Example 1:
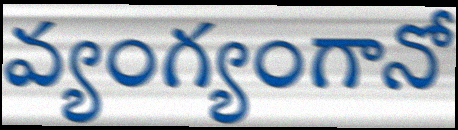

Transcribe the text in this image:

వ్యంగ్యంగానో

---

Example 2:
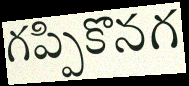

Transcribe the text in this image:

గప్పికొనగ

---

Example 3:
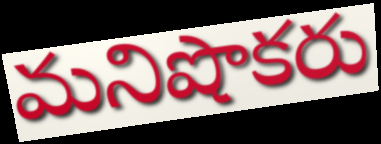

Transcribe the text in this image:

మనిషొకరు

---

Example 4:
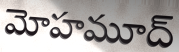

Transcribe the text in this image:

మోహమూద్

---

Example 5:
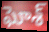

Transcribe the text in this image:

ఘోశ్